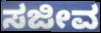
ಸಜೀವ